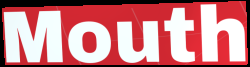
Mouth